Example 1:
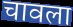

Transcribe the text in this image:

चावला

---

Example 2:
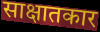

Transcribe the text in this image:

साक्षातकार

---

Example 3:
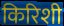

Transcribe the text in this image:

किरिशी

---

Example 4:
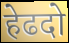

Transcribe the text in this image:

हेढदो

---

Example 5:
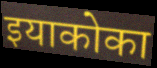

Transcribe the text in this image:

इयाकोका